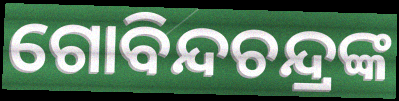
ଗୋବିନ୍ଦଚନ୍ଦ୍ରଙ୍କ